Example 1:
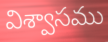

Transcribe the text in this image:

విశ్వాసము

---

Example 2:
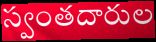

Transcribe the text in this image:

స్వంతదారుల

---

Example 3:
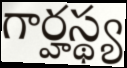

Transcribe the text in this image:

గార్హస్థ్య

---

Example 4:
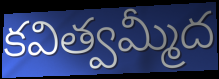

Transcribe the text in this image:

కవిత్వమ్మీద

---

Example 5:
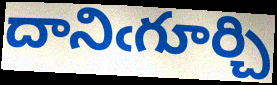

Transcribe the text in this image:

దానిఁగూర్చి